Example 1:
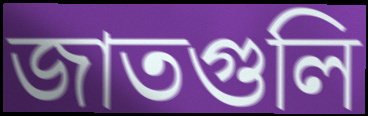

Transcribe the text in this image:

জাতগুলি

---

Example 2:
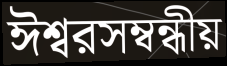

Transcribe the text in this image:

ঈশ্বরসম্বন্ধীয়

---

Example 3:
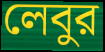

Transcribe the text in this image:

লেবুর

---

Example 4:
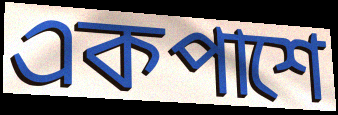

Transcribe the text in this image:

একপাশে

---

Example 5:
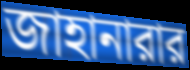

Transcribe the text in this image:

জাহানারার